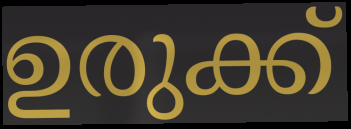
ഉരുക്ക്